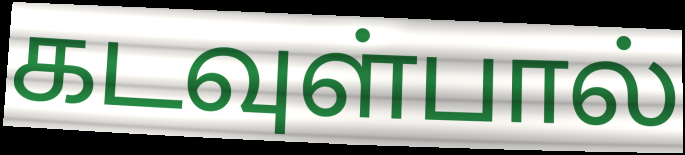
கடவுள்பால்